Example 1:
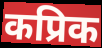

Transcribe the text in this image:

कप्रिक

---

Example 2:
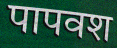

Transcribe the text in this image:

पापवश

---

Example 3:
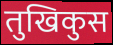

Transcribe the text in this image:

तुखिकुस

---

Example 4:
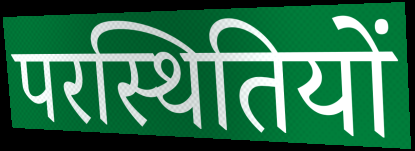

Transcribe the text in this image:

परस्थितियों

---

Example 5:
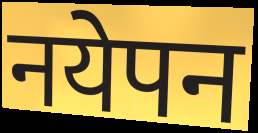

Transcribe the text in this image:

नयेपन